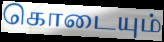
கொடையும்